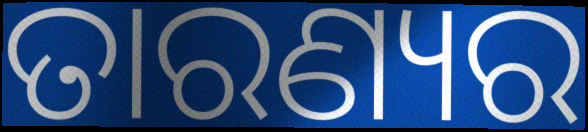
ତାରଣ୍ୟର